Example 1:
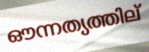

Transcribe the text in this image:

ഔന്നത്യത്തില്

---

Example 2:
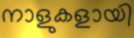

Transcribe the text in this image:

നാളുകളായി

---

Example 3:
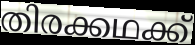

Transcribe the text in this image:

തിരക്കഥക്ക്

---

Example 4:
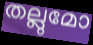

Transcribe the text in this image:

തല്ലുമോ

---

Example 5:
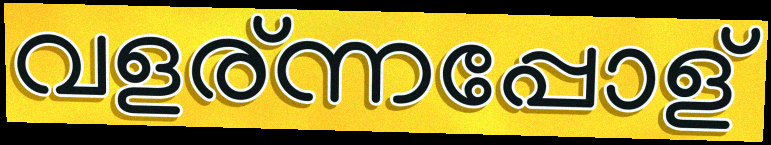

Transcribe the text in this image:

വളര്ന്നപ്പോള്